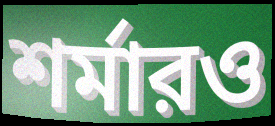
শর্মারও